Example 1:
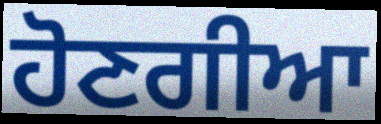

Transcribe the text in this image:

ਹੋਣਗੀਆ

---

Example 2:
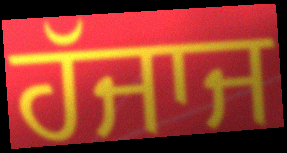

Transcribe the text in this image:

ਹੱਜਾਜ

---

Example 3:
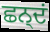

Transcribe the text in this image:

ਛਨ੍ਦਂ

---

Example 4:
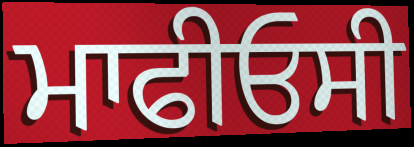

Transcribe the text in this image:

ਮਾਫੀਓਸੀ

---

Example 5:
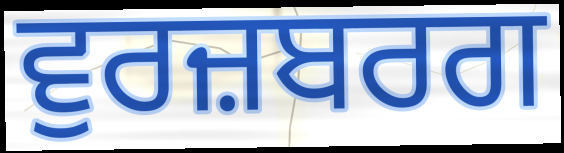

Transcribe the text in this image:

ਵੁਰਜ਼ਬਰਗ